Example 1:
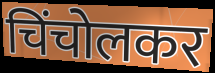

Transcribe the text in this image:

चिंचोलकर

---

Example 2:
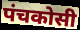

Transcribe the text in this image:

पंचकोसी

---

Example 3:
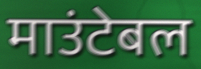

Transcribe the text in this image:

माउंटेबल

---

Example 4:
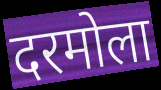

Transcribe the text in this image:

दरमोला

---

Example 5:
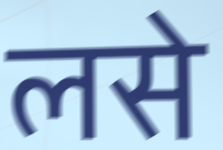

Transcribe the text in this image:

लसे